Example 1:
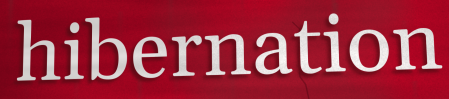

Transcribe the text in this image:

hibernation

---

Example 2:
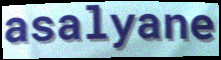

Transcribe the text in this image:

asalyane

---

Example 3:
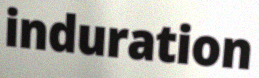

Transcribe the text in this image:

induration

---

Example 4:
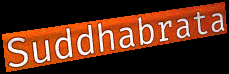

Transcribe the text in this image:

Suddhabrata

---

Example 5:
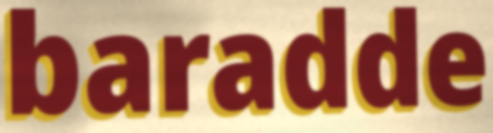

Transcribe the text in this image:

baradde